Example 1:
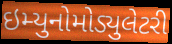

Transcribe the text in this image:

ઇમ્યુનોમોડ્યુલેટરી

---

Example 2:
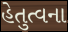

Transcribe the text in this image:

હેતુત્વના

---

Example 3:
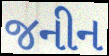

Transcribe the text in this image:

જનીન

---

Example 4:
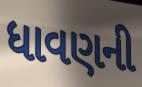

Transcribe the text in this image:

ધાવણની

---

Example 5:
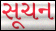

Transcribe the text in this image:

સૂચન